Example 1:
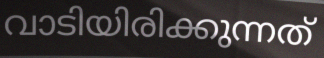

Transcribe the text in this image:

വാടിയിരിക്കുന്നത്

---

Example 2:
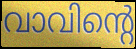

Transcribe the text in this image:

വാവിന്റെ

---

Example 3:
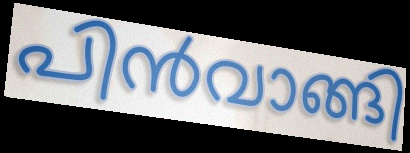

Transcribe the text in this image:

പിൻവാങ്ങി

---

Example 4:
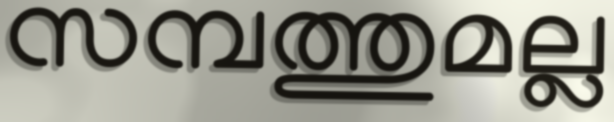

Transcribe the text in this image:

സമ്പത്തുമല്ല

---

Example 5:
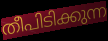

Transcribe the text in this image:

തീപിടിക്കുന്ന